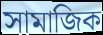
সামাজিক